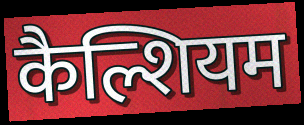
कैल्शियम